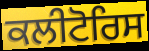
ਕਲੀਟੋਰਿਸ